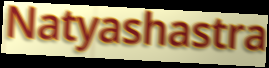
Natyashastra